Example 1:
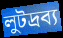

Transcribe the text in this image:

লুটদ্রব্য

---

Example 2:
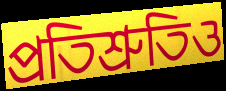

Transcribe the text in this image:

প্রতিশ্রুতিও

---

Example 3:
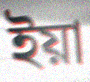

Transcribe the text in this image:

ইয়া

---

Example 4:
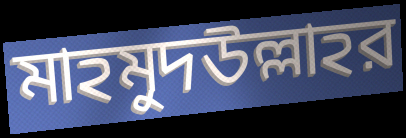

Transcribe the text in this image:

মাহমুদউল্লাহর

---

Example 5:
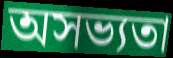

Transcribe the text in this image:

অসভ্যতা